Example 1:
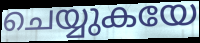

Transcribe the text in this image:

ചെയ്യുകയേ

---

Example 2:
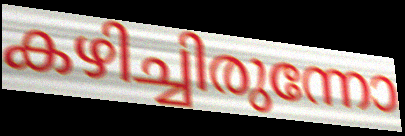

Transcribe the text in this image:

കഴിച്ചിരുന്നോ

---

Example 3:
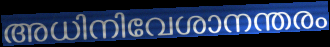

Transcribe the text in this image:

അധിനിവേശാനന്തരം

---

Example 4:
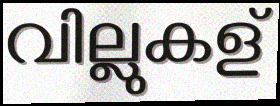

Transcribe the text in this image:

വില്ലുകള്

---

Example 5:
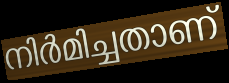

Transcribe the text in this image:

നിർമിച്ചതാണ്